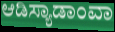
ಆಡಿಸ್ಯಾಡಾಂವಾ